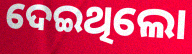
ଦେଇଥିଲୋ